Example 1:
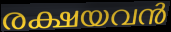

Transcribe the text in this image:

രക്ഷയവൻ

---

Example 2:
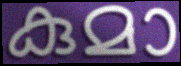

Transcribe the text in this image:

കുമാ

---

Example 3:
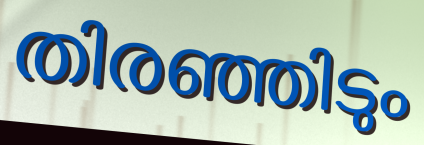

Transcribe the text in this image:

തിരഞ്ഞിടും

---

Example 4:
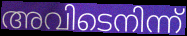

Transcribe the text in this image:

അവിടെനിന്ന്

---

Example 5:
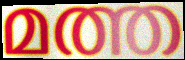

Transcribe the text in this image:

മത്ത